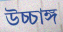
উচ্চাঙ্গ